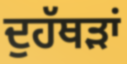
ਦੁਹੱਥੜਾਂ